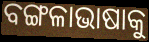
ବଙ୍ଗଳାଭାଷାକୁ